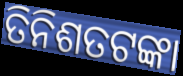
ତିନିଶତଟଙ୍କା